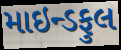
માઇન્ડફુલ